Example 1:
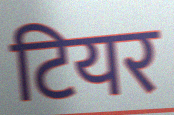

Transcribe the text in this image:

टियर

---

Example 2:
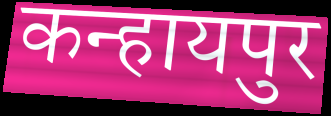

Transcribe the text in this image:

कन्हायपुर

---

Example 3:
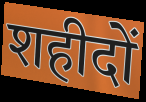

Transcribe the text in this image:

शहीदों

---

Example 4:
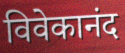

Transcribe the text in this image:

विवेकानंद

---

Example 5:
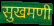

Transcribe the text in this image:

सुखमणी